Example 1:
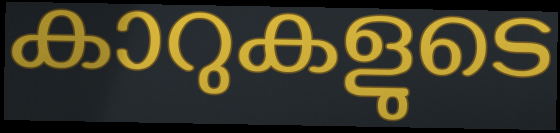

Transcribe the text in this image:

കാറുകളുടെ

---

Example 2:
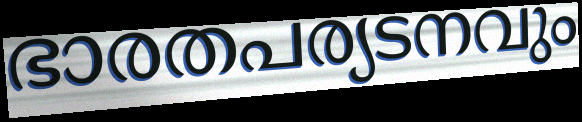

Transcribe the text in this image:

ഭാരതപര്യടനവും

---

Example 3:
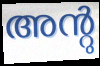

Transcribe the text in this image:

അന്റു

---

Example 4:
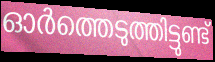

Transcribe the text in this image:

ഓർത്തെടുത്തിട്ടുണ്ട്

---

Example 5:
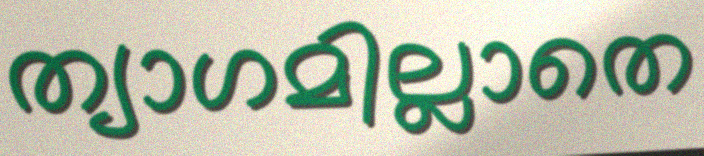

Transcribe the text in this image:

ത്യാഗമില്ലാതെ